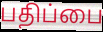
பதிப்பை